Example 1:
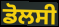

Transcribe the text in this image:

ਡੋਲਸੀ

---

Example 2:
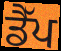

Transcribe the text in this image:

ਡੈੱਪ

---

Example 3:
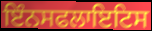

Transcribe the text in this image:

ਇੰਨਸਫਲਾਇਟਿਸ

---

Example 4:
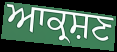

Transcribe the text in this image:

ਆਕ੍ਰਸ਼ਣ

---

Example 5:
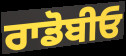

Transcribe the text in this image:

ਰਾਡੋਬੀਓ